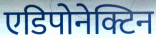
एडिपोनेक्टिन